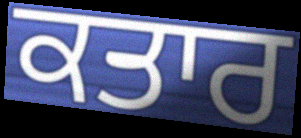
ਕਤਾਰ